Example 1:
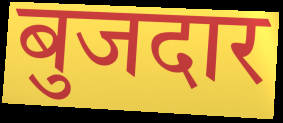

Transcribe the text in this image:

बुजदार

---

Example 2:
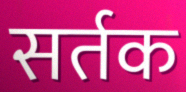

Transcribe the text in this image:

सर्तक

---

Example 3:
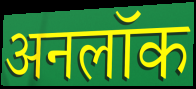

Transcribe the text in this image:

अनलॉक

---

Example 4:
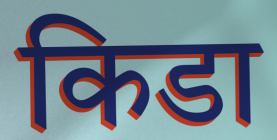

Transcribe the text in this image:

किडा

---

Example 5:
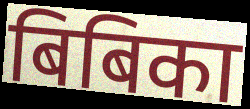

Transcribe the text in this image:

बिबिका